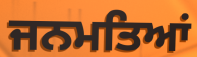
ਜਨਮਤਿਆਂ